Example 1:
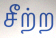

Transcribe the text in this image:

சீற்ற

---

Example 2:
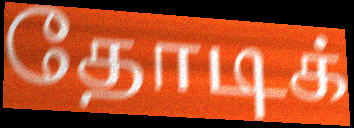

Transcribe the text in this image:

தோடிக்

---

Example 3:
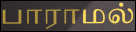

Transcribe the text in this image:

பாராமல்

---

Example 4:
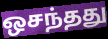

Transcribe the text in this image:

ஒசந்தது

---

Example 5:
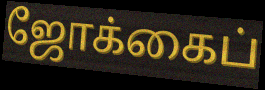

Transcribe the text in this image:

ஜோக்கைப்